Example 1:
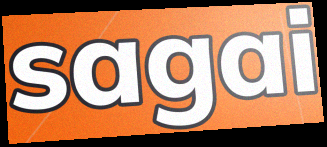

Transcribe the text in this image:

sagai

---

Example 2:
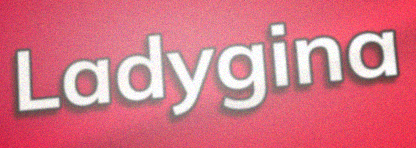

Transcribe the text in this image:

Ladygina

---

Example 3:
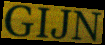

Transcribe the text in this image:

GIJN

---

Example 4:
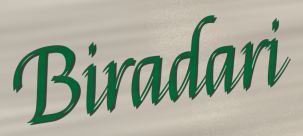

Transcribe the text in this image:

Biradari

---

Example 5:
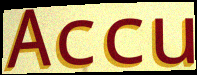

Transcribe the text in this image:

Accu